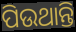
ପିଉଥାନ୍ତି